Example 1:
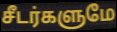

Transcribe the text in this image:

சீடர்களுமே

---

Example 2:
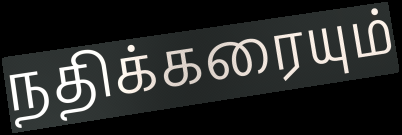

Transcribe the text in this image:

நதிக்கரையும்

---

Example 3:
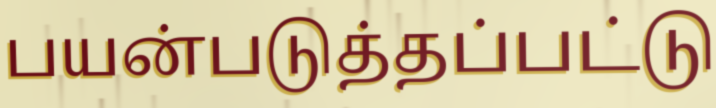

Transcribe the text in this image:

பயன்படுத்தப்பட்டு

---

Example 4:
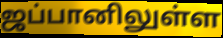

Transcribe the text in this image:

ஜப்பானிலுள்ள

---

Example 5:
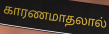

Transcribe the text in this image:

காரணமாதலால்